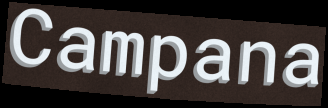
Campana